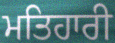
ਮਤਿਹਾਰੀ